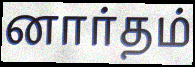
னார்தம்